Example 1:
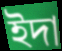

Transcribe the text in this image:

ইদা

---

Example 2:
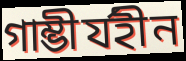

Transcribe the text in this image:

গাম্ভীর্যহীন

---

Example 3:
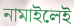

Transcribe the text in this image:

নামাইলেই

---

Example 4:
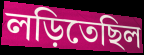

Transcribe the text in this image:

লড়িতেছিল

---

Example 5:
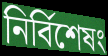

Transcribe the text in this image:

নির্বিশেষং